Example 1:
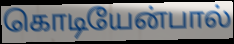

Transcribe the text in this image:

கொடியேன்பால்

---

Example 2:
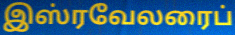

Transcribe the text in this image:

இஸ்ரவேலரைப்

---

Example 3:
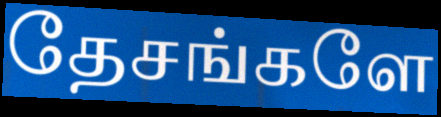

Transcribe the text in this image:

தேசங்களே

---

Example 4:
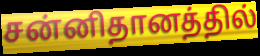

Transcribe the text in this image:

சன்னிதானத்தில்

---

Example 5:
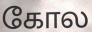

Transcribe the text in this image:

கோல